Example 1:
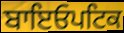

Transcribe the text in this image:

ਬਾਇਓਪਟਿਕ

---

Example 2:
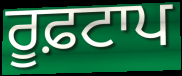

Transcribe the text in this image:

ਰੂਫ਼ਟਾਪ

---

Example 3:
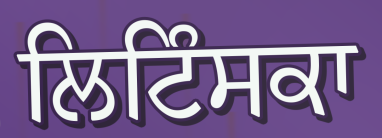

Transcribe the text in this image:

ਲਿਟਿੰਸਕਾ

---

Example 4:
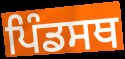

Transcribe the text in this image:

ਪਿੰਡਸਥ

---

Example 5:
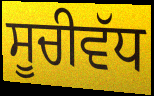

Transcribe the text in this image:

ਸੂਚੀਵੱਧ